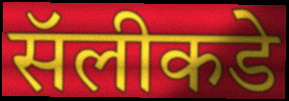
सॅलीकडे